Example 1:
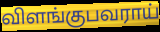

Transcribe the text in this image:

விளங்குபவராய்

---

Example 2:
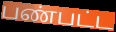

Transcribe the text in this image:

பண்பட்ட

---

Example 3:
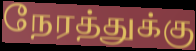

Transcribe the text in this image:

நேரத்துக்கு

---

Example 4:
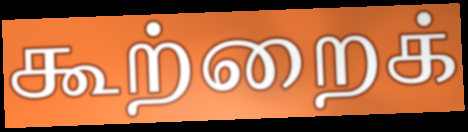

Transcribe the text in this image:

கூற்றைக்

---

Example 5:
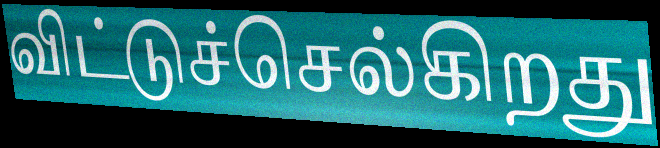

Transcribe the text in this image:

விட்டுச்செல்கிறது